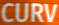
CURV